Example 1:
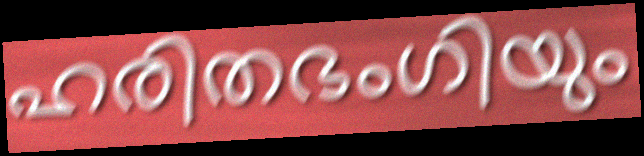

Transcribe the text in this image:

ഹരിതഭംഗിയും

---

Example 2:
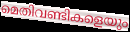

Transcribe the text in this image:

മെതിവണ്ടികളെയും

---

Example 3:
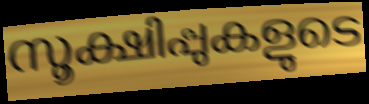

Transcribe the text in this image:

സൂക്ഷിപ്പുകളുടെ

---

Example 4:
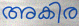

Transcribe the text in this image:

അകിര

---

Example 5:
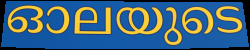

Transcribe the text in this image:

ഓലയുടെ